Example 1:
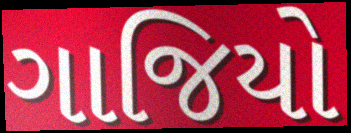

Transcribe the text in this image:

ગાજિયો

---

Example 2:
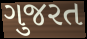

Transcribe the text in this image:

ગુજરત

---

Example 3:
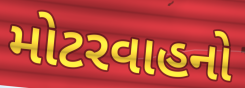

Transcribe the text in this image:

મોટરવાહનો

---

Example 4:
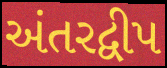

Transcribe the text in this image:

અંતરદ્વીપ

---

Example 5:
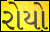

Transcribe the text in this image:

રોયો